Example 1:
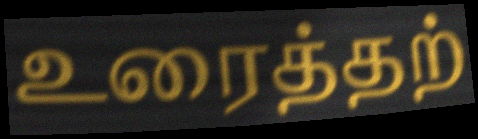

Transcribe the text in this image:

உரைத்தற்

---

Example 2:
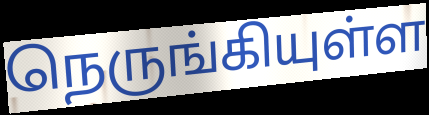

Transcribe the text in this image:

நெருங்கியுள்ள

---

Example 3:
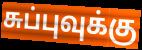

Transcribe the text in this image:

சுப்புவுக்கு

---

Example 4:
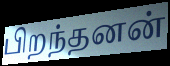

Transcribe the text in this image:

பிறந்தனன்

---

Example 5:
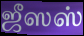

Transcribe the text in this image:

ஜீஸஸ்